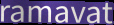
ramavat